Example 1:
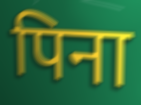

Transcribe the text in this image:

पिना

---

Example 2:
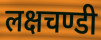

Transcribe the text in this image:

लक्षचण्डी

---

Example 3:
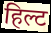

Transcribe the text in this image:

हिल्ट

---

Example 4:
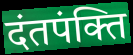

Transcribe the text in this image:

दंतपंक्ति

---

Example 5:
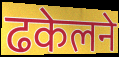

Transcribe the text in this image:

ढकेलने